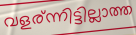
വളര്ന്നിട്ടില്ലാത്ത